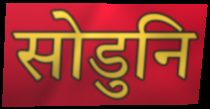
सोडुनि